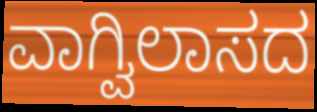
ವಾಗ್ವಿಲಾಸದ